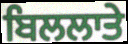
ਬਿਲਲਾਤੇ